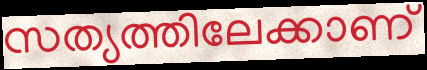
സത്യത്തിലേക്കാണ്